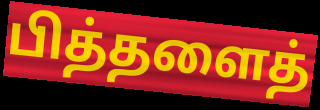
பித்தளைத்